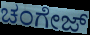
ಚಂಗೇಜ್